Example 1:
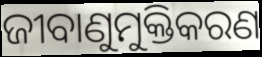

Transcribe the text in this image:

ଜୀବାଣୁମୁକ୍ତିକରଣ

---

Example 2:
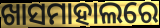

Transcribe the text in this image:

ଖାସମାହାଲରେ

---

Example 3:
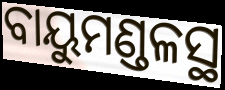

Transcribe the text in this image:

ବାୟୁମଣ୍ଡଳସ୍ଥ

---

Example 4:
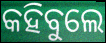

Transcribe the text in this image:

କହିବୁଲେ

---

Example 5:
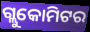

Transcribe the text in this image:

ଗ୍ଲୁକୋମିଟର